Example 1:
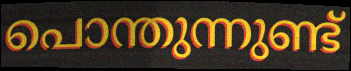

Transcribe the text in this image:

പൊന്തുന്നുണ്ട്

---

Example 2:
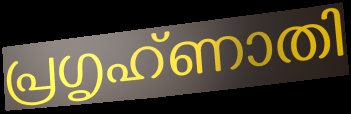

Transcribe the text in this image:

പ്രഗൃഹ്ണാതി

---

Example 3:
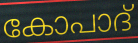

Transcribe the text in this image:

കോപാദ്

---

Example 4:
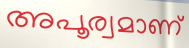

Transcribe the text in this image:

അപൂര്വമാണ്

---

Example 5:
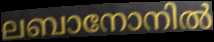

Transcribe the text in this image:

ലബാനോനിൽ